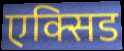
एक्सिड